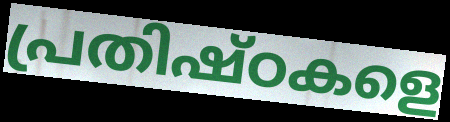
പ്രതിഷ്ഠകളെ